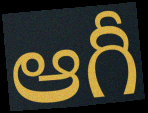
ఆగీ